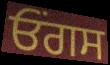
ਓਂਗਸ